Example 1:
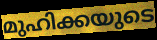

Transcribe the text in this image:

മുഹിക്കയുടെ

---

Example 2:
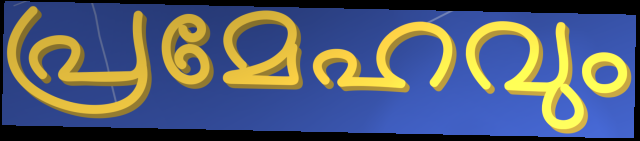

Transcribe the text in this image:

പ്രമേഹവും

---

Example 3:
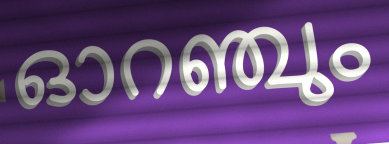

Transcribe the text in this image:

ഓറഞ്ചും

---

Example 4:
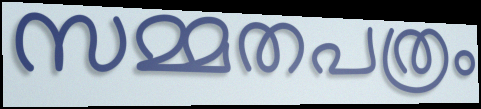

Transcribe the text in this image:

സമ്മതപത്രം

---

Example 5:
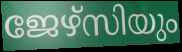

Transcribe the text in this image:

ജേഴ്സിയും